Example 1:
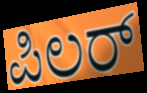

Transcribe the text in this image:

ಪಿಲರ್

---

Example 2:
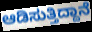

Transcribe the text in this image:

ಆಡಿಸುತ್ತಿದ್ದಾನೆ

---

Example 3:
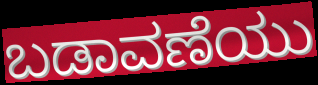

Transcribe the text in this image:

ಬಡಾವಣೆಯು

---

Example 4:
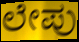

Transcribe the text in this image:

ಲೇಪು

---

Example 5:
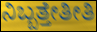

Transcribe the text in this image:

ನಿಬ್ಬತ್ತೇತೀತಿ